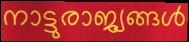
നാട്ടുരാജ്യങ്ങൾ